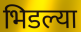
भिडल्या